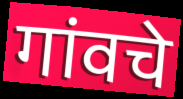
गांवचे